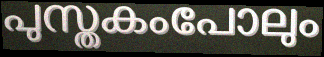
പുസ്തകംപോലും